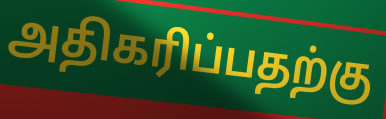
அதிகரிப்பதற்கு